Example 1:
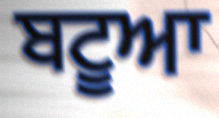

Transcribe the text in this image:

ਬਟੂਆ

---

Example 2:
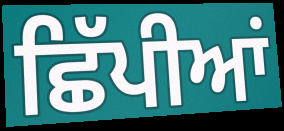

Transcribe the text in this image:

ਛਿੱਪੀਆਂ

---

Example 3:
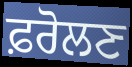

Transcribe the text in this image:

ਫ਼ਰੋਲਣ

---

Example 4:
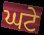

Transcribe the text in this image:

ਘਟੇ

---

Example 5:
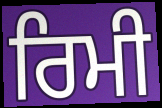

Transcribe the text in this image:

ਰਿਮੀ